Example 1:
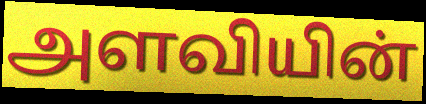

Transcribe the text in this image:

அளவியின்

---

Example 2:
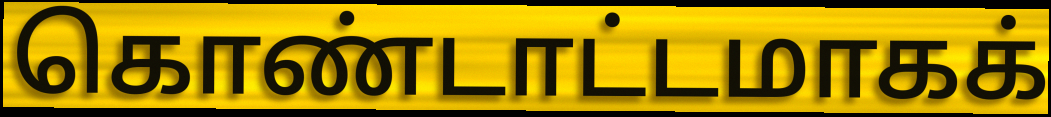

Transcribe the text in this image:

கொண்டாட்டமாகக்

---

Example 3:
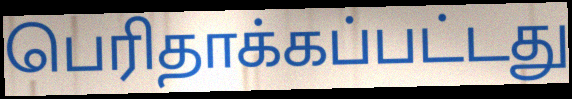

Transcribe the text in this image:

பெரிதாக்கப்பட்டது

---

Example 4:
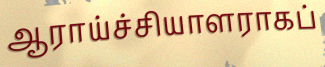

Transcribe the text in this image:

ஆராய்ச்சியாளராகப்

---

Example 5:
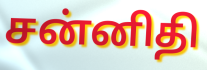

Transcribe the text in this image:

சன்னிதி